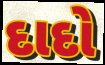
દાદો